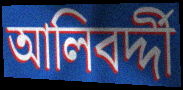
আলিবর্দ্দী